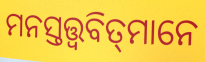
ମନସ୍ତତ୍ତ୍ୱବିତ୍‌ମାନେ